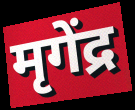
मृगेंद्र